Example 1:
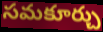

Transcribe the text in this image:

సమకూర్చు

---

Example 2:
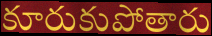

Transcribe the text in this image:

కూరుకుపోతారు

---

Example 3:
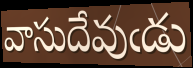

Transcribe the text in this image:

వాసుదేవుఁడు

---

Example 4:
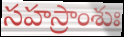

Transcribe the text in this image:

సహస్రాంశుః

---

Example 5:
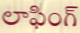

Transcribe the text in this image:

లాఫింగ్